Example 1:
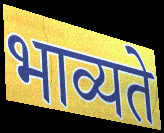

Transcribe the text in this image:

भाव्यते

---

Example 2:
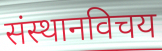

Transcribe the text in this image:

संस्थानविचय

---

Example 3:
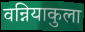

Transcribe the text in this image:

वन्नियाकुला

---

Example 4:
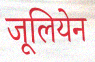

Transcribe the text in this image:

जूलियेन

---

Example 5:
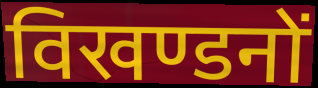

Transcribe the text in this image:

विखण्डनों